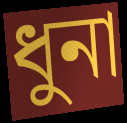
ধুনা